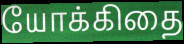
யோக்கிதை